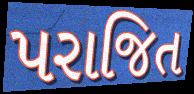
પરાજિત